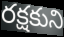
రక్షకుని